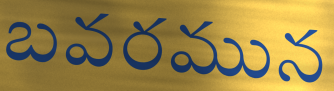
బవరమున